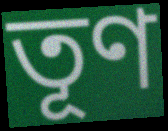
তূণ